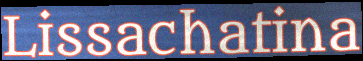
Lissachatina